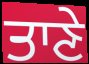
ਤਾਣੇ